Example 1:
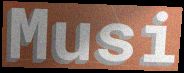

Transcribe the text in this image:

Musi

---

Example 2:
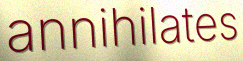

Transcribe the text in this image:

annihilates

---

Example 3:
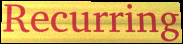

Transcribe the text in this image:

Recurring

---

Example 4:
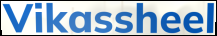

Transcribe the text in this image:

Vikassheel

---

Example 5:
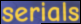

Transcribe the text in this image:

serials